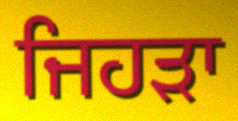
ਜਿਹੜਾ